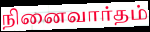
நினைவார்தம்